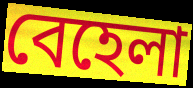
বেহেলা